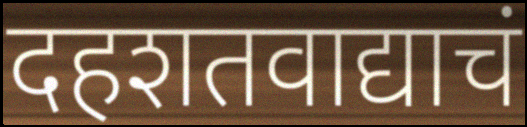
दहशतवाद्याचं